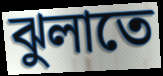
ঝুলাতে